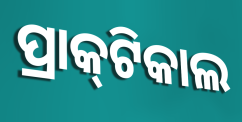
ପ୍ରାକ୍‌ଟିକାଲ